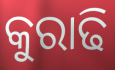
କୁରାଢି